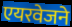
एयरवेजने